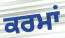
ਕਰਮਾਂ